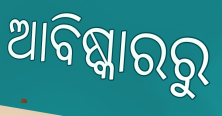
ଆବିଷ୍କାରରୁ